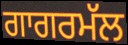
ਗਾਗਰਮੱਲ